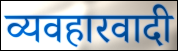
व्यवहारवादी